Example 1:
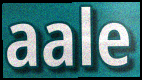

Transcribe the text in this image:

aale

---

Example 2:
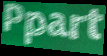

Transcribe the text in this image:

Ppart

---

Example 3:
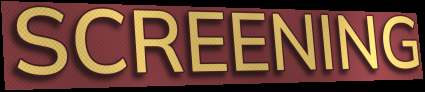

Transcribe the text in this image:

SCREENING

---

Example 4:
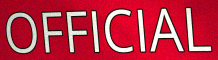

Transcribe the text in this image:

OFFICIAL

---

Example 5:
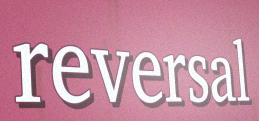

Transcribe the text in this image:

reversal